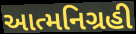
આત્મનિગ્રહી